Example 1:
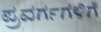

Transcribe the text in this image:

ಪ್ರವರ್ಗಗಳಿಗೆ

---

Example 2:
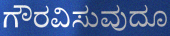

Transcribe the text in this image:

ಗೌರವಿಸುವುದೂ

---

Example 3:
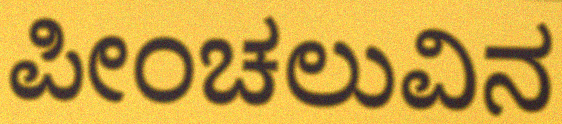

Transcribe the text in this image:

ಪೀಂಚಲುವಿನ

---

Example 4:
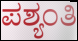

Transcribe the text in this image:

ಪಶ್ಯಂತಿ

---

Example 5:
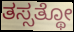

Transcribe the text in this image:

ತಸ್ಸತ್ಥೋ